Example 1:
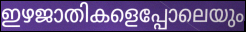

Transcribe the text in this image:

ഇഴജാതികളെപ്പോലെയും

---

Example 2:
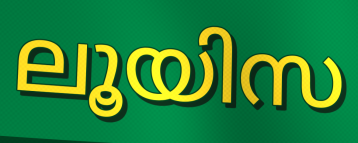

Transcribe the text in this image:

ലൂയിസ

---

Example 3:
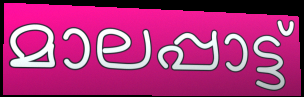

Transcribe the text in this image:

മാലപ്പാട്ട്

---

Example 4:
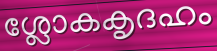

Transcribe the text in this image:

ശ്ലോകകൃദഹം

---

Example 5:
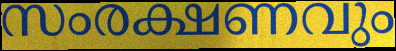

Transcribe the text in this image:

സംരക്ഷണവും